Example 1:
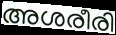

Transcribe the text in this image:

അശരീരി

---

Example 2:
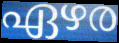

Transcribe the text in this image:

ഏഴര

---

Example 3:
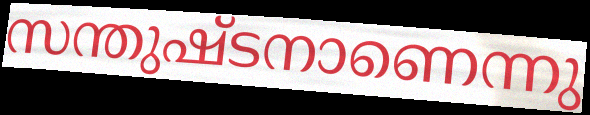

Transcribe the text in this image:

സന്തുഷ്ടനാണെന്നു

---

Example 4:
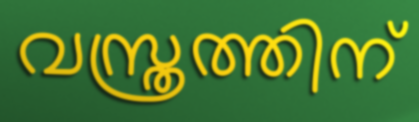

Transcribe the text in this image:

വസ്ത്രത്തിന്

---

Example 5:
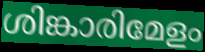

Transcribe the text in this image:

ശിങ്കാരിമേളം